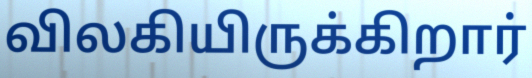
விலகியிருக்கிறார்